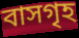
বাসগৃহ